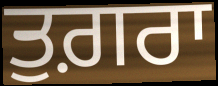
ਤੁਗ਼ਰਾ